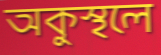
অকুস্থলে